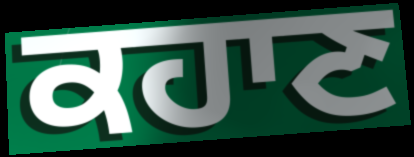
ਕਹਾਣ